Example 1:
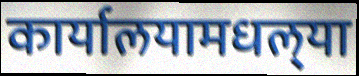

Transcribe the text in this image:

कार्यालयामधल्या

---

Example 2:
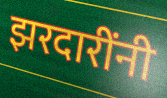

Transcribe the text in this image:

झरदारींनी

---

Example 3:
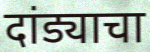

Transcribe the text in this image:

दांड्याचा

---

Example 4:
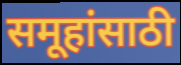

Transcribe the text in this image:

समूहांसाठी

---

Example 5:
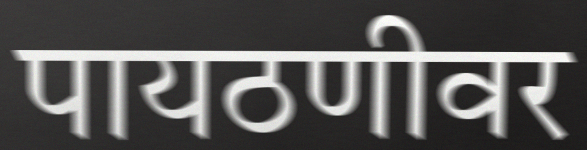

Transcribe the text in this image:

पायठणीवर